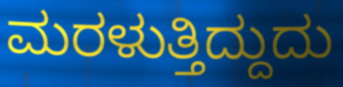
ಮರಳುತ್ತಿದ್ದುದು